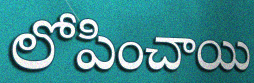
లోపించాయి